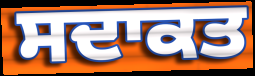
ਸਦਾਕਤ